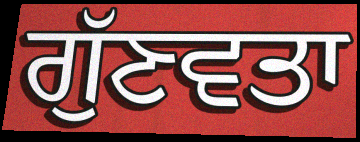
ਗੁੱਣਵਤਾ